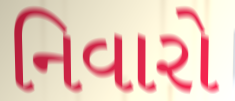
નિવારો